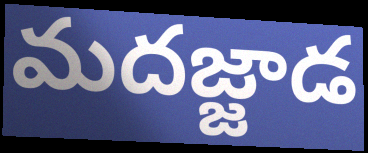
మదజ్జాడ